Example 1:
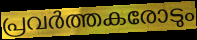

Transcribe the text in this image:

പ്രവർത്തകരോടും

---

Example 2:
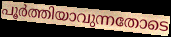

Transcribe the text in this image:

പൂർത്തിയാവുന്നതോടെ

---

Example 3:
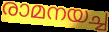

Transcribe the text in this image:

രാമനയച്ച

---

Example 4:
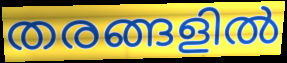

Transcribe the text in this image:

തരങ്ങളിൽ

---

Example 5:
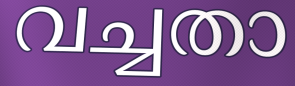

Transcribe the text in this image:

വച്ചതാ